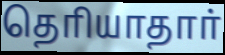
தெரியாதார்